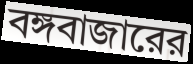
বঙ্গবাজারের